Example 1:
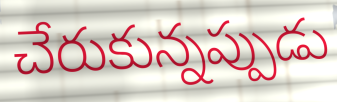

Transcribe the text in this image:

చేరుకున్నప్పుడు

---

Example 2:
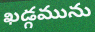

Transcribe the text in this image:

ఖడ్గమును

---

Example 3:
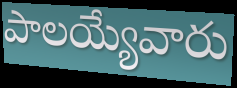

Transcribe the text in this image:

పాలయ్యేవారు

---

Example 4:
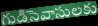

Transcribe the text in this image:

గుడిసెవాసులకు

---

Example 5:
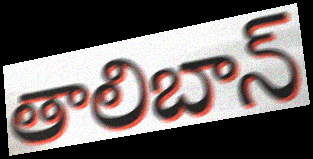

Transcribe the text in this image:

తాలిబాన్